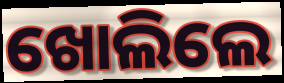
ଖୋଲିଲେ